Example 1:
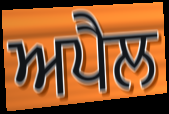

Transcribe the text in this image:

ਅਪੈਲ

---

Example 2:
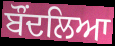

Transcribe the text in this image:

ਬੌਂਦਲਿਆ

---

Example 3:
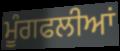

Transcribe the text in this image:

ਮੂੰਗਫਲੀਆਂ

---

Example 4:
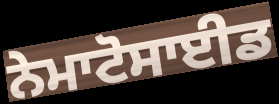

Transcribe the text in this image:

ਨੇਮਾਟੋਸਾਈਡ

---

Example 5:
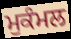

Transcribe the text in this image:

ਮੁਕੰਮਲ